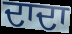
ਦਾਦਾ